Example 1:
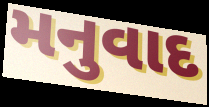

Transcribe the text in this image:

મનુવાદ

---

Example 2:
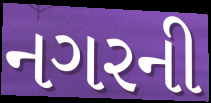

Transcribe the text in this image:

નગરની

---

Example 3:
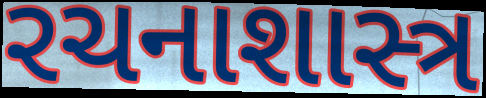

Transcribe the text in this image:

રચનાશાસ્ત્ર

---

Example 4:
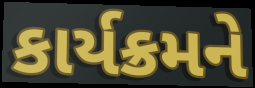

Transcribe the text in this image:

કાર્યક્રમને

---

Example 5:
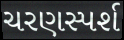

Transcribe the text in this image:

ચરણસ્પર્શ